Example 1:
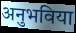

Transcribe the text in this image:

अनुभविया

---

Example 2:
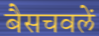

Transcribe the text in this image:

बैसचवलें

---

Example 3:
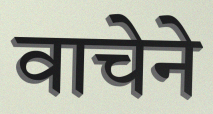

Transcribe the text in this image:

वाचेने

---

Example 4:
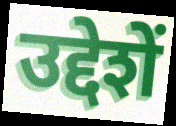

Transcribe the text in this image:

उद्देशें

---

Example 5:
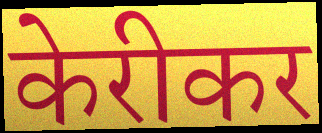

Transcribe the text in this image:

केरीकर